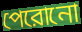
পেরোনো